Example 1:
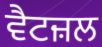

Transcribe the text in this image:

ਵੈਟਜ਼ਲ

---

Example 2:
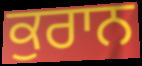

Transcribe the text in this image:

ਕੁਰਾਨ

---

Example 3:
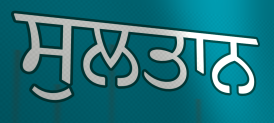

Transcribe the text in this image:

ਸੁਲਤਾਨ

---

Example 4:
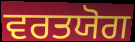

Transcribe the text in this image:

ਵਰਤਯੋਗ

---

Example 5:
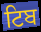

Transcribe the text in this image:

ਟਿਬ